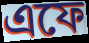
এফে